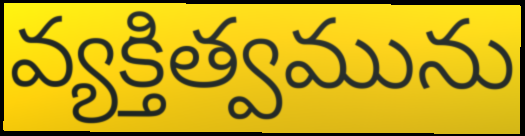
వ్యక్తిత్వమును